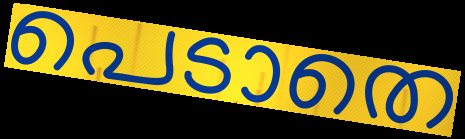
പെടാതെ